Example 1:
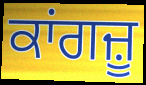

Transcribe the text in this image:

ਕਾਂਗਜ਼ੂ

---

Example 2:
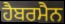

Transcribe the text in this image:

ਹੈਬਰਮੈਨ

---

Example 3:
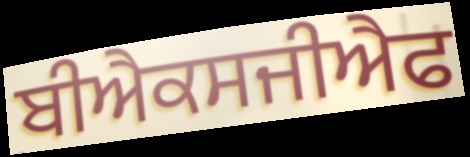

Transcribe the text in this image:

ਬੀਐਕਸਜੀਐਫ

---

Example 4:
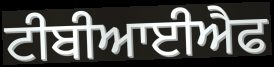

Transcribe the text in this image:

ਟੀਬੀਆਈਐਫ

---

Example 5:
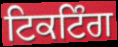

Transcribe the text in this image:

ਟਿਕਟਿੰਗ